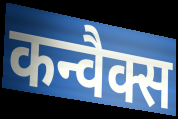
कन्वैक्स